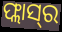
ଫ୍ଲାସ୍‌ର